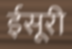
ईसूरी